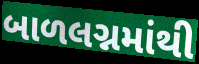
બાળલગ્નમાંથી